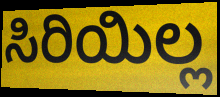
ಸಿರಿಯಿಲ್ಲ